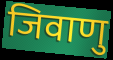
जिवाणु